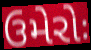
ઉમેરોઃ